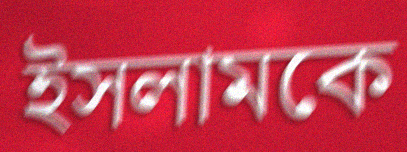
ইসলামকে